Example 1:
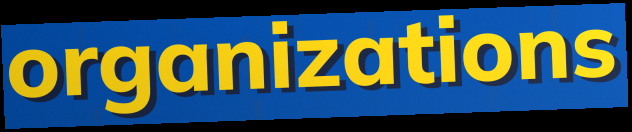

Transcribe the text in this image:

organizations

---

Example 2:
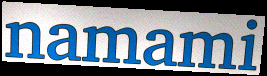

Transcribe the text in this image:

namami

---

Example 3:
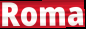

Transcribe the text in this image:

Roma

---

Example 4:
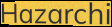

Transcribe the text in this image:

Hazarchi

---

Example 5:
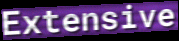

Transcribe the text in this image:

Extensive